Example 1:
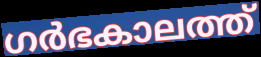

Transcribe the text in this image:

ഗർഭകാലത്ത്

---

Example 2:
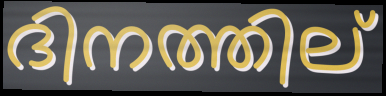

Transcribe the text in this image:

ദിനത്തില്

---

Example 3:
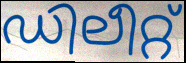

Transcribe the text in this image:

ഡിലീറ്റ്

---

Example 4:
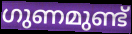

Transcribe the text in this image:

ഗുണമുണ്ട്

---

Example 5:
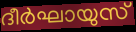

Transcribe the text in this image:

ദീർഘായുസ്